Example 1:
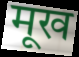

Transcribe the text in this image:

मूख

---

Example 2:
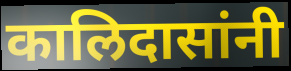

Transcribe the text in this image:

कालिदासांनी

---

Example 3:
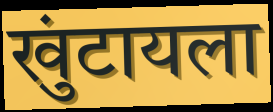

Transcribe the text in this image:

खुंटायला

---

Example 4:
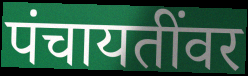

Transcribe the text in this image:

पंचायतींवर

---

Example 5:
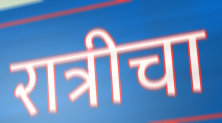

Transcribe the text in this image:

रात्रीचा